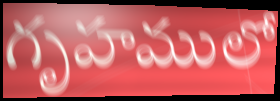
గృహములో